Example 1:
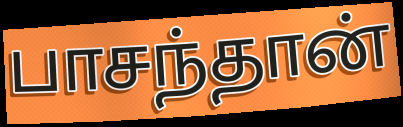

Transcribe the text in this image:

பாசந்தான்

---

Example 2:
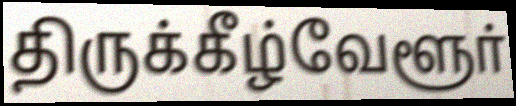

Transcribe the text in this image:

திருக்கீழ்வேளூர்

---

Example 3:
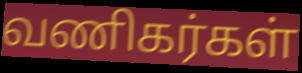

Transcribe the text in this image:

வணிகர்கள்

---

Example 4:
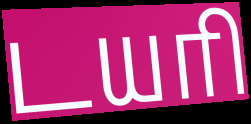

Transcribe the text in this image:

டயரி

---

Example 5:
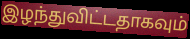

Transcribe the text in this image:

இழந்துவிட்டதாகவும்